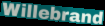
Willebrand